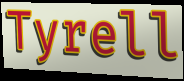
Tyrell